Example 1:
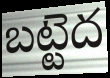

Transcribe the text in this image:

బట్టెద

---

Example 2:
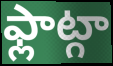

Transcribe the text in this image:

ఫ్లాట్గా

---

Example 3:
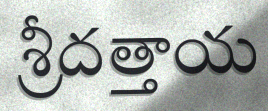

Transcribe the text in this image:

శ్రీదత్తాయ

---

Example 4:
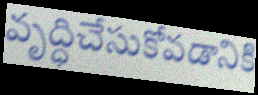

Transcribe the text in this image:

వృద్ధిచేసుకోవడానికి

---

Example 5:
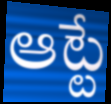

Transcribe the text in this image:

ఆట్టే